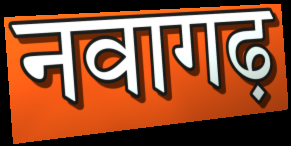
नवागढ़